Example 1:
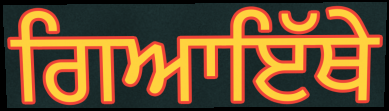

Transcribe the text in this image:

ਗਿਆਇੱਥੇ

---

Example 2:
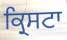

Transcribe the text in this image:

ਕ੍ਰਿਸਟਾ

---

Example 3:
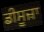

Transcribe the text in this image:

ਡੀਸੂਜ਼ਾ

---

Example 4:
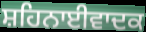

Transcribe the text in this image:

ਸ਼ਹਿਨਾਈਵਾਦਕ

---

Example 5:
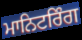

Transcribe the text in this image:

ਮਾਨਿਟਰਿੰਗ